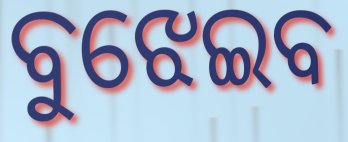
ବୁଝେଇବ